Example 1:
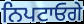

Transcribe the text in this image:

ਨਿਪਟਾਓਗੇ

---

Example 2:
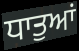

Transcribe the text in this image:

ਧਾਤੁਆਂ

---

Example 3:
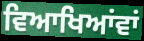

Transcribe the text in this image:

ਵਿਆਖਿਆਂਵਾਂ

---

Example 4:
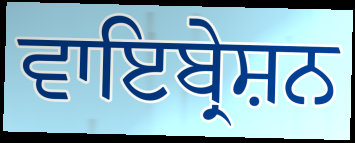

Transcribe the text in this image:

ਵਾਇਬ੍ਰੇਸ਼ਨ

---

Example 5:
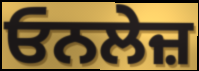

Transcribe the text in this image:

ਓਨਲੇਜ਼